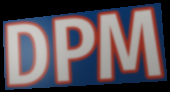
DPM